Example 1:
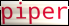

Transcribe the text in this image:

piper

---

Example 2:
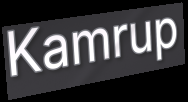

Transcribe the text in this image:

Kamrup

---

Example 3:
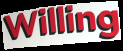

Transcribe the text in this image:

Willing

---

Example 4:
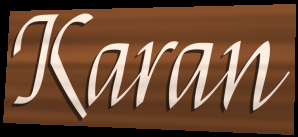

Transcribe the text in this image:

Karan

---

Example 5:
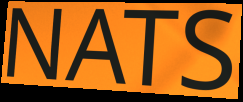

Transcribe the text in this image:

NATS